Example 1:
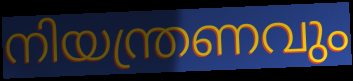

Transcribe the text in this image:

നിയന്ത്രണവും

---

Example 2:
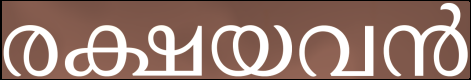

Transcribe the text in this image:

രക്ഷയവൻ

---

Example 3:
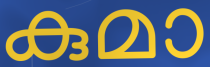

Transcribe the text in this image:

കുമാ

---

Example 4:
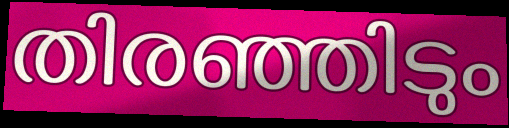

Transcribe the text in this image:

തിരഞ്ഞിടും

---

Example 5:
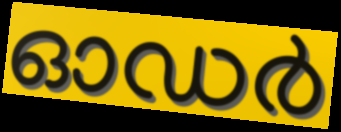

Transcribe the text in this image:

ഓഡർ